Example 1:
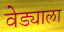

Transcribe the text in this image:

वेड्याला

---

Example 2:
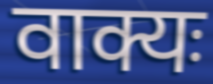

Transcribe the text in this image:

वाक्यः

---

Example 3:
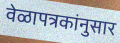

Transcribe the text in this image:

वेळापत्रकांनुसार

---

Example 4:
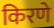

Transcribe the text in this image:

किरणे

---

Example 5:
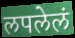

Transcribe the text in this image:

लपलेलं